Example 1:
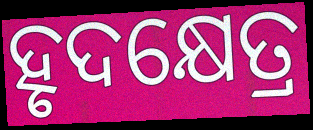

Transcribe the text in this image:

ହୃଦକ୍ଷେତ୍ର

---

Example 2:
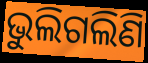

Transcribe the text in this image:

ଭୁଲିଗଲିଣି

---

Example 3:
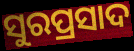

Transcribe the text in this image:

ସୁରପ୍ରସାଦ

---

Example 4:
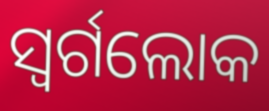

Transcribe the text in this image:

ସ୍ୱର୍ଗଲୋକ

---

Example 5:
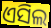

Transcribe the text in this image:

ଏସିଲ